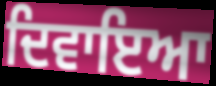
ਦਿਵਾਇਆ